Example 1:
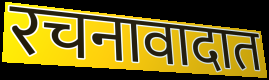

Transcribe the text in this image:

रचनावादात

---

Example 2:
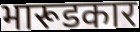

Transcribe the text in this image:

भारूडकार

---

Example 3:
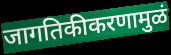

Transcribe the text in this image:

जागतिकीकरणामुळं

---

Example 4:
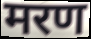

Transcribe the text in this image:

मरण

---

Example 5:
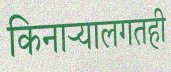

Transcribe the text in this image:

किनाऱ्यालगतही